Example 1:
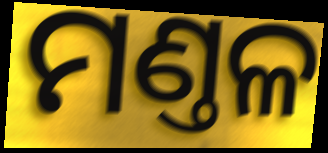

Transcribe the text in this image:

ମଣ୍ତଳ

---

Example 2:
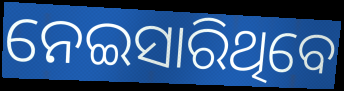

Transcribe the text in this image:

ନେଇସାରିଥିବେ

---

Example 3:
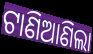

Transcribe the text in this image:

ଟାଣିଆଣିଲା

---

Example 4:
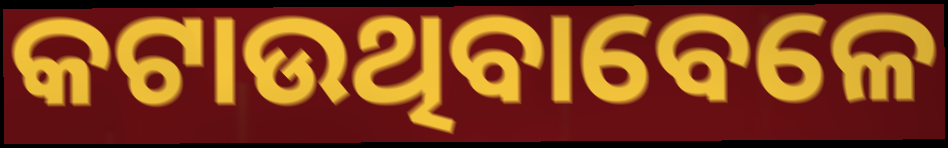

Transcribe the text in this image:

କଟାଉଥିବାବେଳେ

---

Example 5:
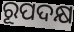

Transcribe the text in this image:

ରୂପଦକ୍ଷ